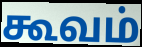
கூவம்